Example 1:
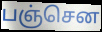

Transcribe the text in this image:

பஞ்சென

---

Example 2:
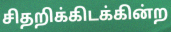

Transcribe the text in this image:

சிதறிக்கிடக்கின்ற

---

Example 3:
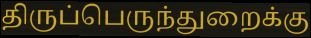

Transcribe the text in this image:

திருப்பெருந்துறைக்கு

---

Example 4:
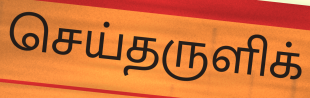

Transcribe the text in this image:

செய்தருளிக்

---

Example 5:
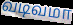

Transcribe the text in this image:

வடிவமா